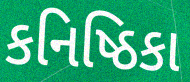
કનિષ્ઠિકા